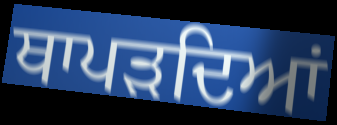
ਥਾਪੜਦਿਆਂ